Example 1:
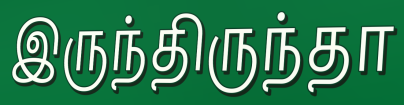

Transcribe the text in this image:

இருந்திருந்தா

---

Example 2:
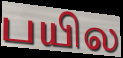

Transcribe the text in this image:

பயில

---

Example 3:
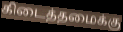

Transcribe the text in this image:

கிடைத்தமைக்கு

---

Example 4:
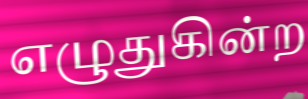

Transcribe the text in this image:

எழுதுகின்ற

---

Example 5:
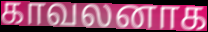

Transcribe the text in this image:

காவலனாக